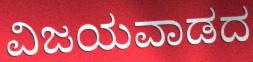
ವಿಜಯವಾಡದ